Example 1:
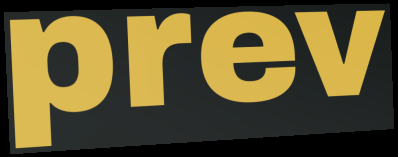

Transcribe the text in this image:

prev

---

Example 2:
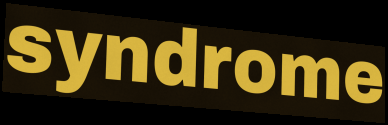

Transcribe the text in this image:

syndrome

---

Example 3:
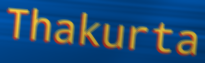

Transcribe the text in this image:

Thakurta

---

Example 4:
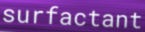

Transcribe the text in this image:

surfactant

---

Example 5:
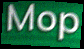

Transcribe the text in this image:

Mop